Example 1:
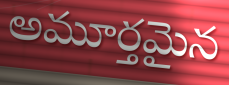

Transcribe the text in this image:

అమూర్తమైన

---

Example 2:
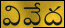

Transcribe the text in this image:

వివేద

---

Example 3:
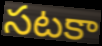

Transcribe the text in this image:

సటకా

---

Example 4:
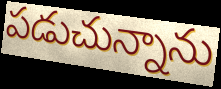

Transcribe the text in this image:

పడుచున్నాను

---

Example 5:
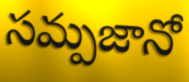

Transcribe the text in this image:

సమ్పజానో